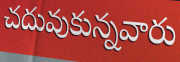
చదువుకున్నవారు